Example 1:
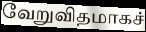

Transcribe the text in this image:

வேறுவிதமாகச்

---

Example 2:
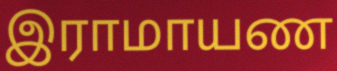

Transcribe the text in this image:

இராமாயண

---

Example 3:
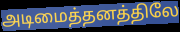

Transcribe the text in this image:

அடிமைத்தனத்திலே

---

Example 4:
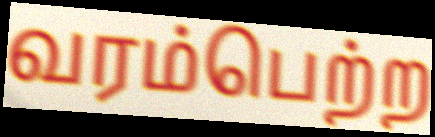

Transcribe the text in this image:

வரம்பெற்ற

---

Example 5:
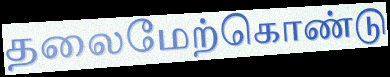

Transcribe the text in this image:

தலைமேற்கொண்டு